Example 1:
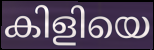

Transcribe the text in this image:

കിളിയെ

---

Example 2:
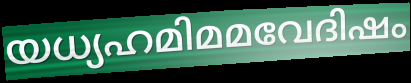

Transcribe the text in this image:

യധ്യഹമിമമവേദിഷം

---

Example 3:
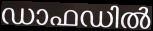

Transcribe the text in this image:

ഡാഫഡിൽ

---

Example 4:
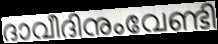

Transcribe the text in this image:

ദാവീദിനുംവേണ്ടി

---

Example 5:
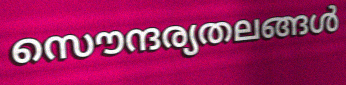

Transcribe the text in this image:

സൌന്ദര്യതലങ്ങൾ